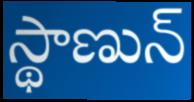
స్థాణున్